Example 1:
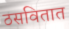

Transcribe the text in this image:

ठसवितात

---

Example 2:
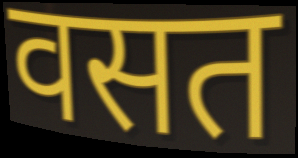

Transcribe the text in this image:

वसत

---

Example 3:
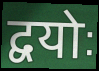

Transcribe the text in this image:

द्वयोः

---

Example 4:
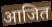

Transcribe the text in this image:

आजित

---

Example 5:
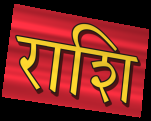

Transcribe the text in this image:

राशि